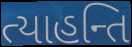
ત્યાહન્તિ